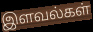
இளவல்கள்